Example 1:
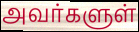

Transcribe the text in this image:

அவர்களுள்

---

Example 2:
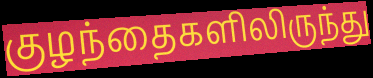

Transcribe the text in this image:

குழந்தைகளிலிருந்து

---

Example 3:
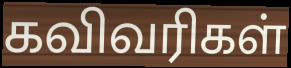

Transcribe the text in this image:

கவிவரிகள்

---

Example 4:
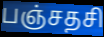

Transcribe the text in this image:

பஞ்சதசி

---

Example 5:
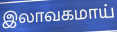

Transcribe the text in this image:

இலாவகமாய்